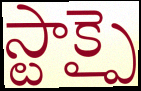
స్టాక్పై